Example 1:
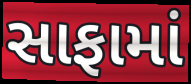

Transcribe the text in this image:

સાફામાં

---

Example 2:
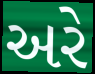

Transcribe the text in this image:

અરે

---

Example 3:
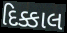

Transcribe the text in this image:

દિક્કાલ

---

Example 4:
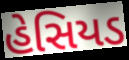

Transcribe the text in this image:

હેસિયડ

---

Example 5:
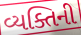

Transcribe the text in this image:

વ્યક્તિની